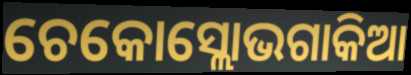
ଚେକୋସ୍ଲୋଭଗାକିଆ